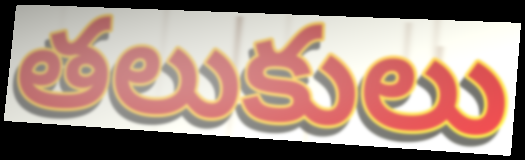
తలుకులు